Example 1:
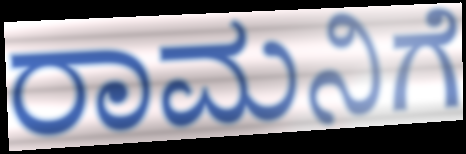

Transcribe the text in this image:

ರಾಮನಿಗೆ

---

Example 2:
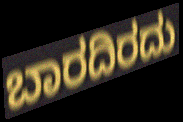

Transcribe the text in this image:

ಬಾರದಿರದು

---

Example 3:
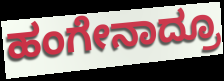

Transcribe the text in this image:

ಹಂಗೇನಾದ್ರೂ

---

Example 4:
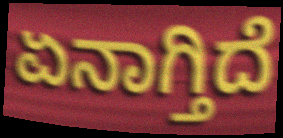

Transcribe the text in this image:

ಏನಾಗ್ತಿದೆ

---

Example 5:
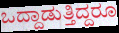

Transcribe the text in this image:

ಒದ್ದಾಡುತ್ತಿದ್ದರೂ